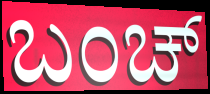
ಬಂಚ್